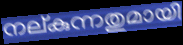
നല്കുന്നതുമായി